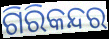
ଗିରିକନ୍ଦର